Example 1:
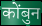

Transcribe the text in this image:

कोंबुन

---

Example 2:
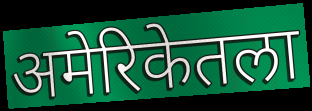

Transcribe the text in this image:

अमेरिकेतला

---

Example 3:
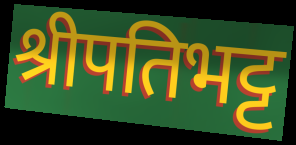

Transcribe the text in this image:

श्रीपतिभट्ट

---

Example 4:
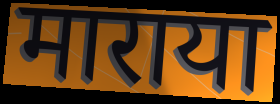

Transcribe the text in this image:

माराया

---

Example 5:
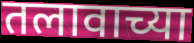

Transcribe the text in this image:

तलावाच्या